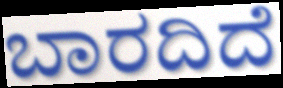
ಬಾರದಿದೆ